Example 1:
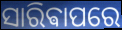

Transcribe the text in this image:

ସାରିଵାପରେ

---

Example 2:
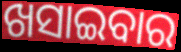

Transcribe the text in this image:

ଖସାଇବାର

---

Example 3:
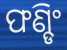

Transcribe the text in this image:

ଫଣ୍ଡିଂ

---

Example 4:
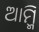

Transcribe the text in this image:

ଆମ୍ମି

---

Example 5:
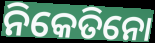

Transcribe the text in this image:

ନିକେତିନୋ